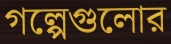
গল্পেগুলোর